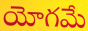
యోగమే